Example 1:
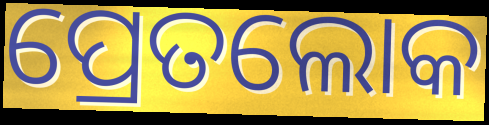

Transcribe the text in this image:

ପ୍ରେତଲୋକ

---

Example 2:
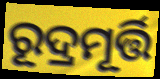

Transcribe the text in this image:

ରୂଦ୍ରମୂର୍ତ୍ତି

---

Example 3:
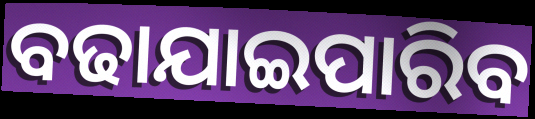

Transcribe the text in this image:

ବଢାଯାଇପାରିବ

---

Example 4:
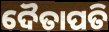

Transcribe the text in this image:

ଦୈତାପତି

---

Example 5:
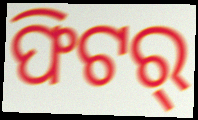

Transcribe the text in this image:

ଫିଟର୍